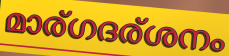
മാര്ഗദര്ശനം